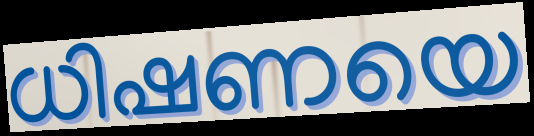
ധിഷണയെ